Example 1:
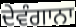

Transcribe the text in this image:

ਦੇਵੰਗਾਨਾ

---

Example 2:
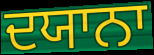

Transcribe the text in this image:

ਦਯਾਨਾ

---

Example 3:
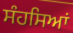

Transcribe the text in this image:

ਸੰਹਸਿਆਂ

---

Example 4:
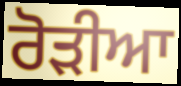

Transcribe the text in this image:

ਰੋੜੀਆ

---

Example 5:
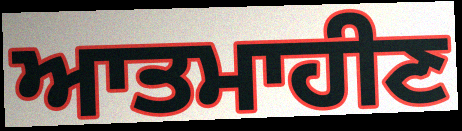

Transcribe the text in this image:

ਆਤਮਾਹੀਣ